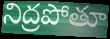
నిద్రపోతూ